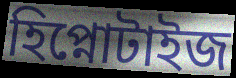
হিপ্নোটাইজ